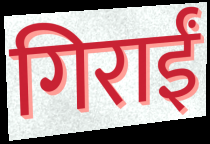
गिराईं